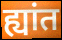
ह्यांत